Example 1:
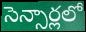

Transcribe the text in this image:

సెన్సార్లలో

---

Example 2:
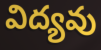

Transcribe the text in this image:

విద్యవు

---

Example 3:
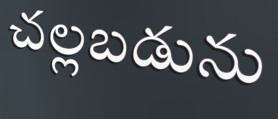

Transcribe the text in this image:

చల్లబడును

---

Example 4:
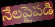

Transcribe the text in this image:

నేలపైపడి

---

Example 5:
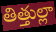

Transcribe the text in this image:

తిత్తుల్లా